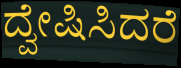
ದ್ವೇಷಿಸಿದರೆ